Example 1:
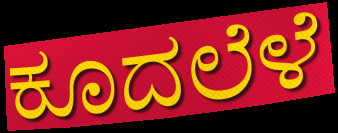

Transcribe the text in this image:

ಕೂದಲೆಳೆ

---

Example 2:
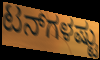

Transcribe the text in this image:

ಟನ್‌ಗಳಷ್ಟು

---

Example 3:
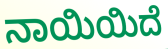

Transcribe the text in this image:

ನಾಯಿಯಿದೆ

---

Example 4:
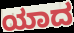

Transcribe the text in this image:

ಯಾದ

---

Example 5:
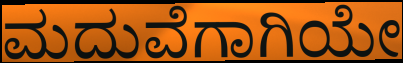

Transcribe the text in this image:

ಮದುವೆಗಾಗಿಯೇ